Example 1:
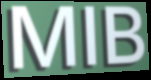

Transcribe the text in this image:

MIB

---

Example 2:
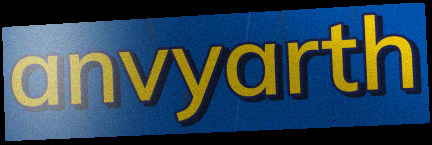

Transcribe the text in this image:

anvyarth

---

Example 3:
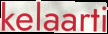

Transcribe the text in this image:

kelaarti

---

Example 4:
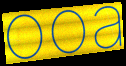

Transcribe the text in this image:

ooa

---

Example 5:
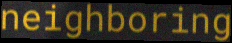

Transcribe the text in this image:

neighboring